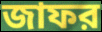
জাফর